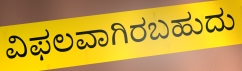
ವಿಫಲವಾಗಿರಬಹುದು